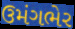
ઉમંગભેર